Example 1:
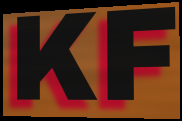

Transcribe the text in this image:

KF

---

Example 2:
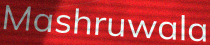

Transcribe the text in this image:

Mashruwala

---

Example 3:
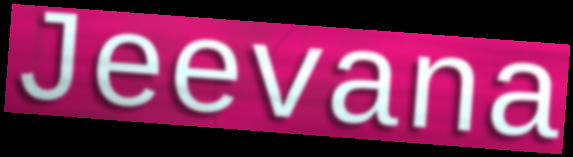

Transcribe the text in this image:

Jeevana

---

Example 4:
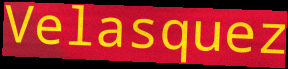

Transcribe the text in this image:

Velasquez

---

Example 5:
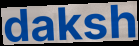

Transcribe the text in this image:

daksh